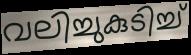
വലിച്ചുകുടിച്ച്